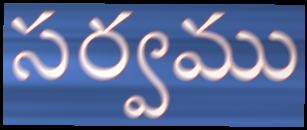
సర్వము